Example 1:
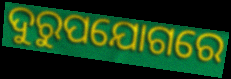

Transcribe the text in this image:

ଦୁରୁପଯୋଗରେ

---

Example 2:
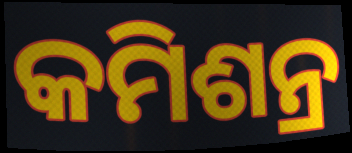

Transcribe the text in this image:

କମିଶନ୍ର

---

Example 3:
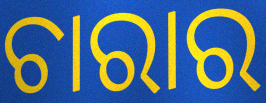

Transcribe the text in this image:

ଚାରାର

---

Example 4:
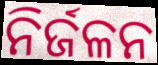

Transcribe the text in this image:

ନିର୍ଜଳନ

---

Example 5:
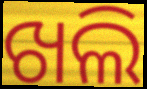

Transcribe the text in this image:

ଖଲି